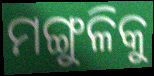
ମଙ୍ଗୁଳିକୁ